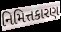
નિમિત્તકારણ